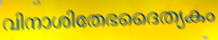
വിനാശിതേഭദൈത്യകം